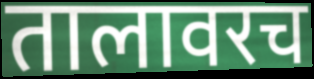
तालावरच